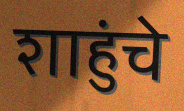
शाहुंचे